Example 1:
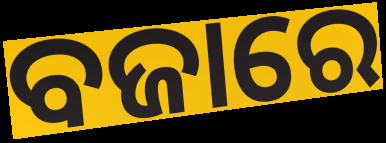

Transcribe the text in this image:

ବଜାରେ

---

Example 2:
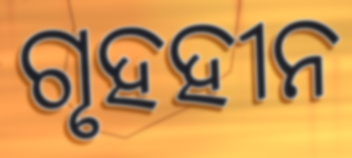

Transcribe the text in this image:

ଗୃହହୀନ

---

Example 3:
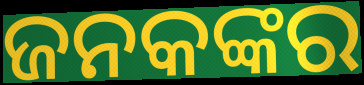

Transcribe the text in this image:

ଜନକଙ୍କର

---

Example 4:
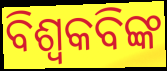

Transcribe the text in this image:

ବିଶ୍ୱକବିଙ୍କ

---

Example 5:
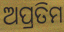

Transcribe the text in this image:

ଅପ୍ରତିମ